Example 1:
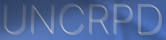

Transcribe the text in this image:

UNCRPD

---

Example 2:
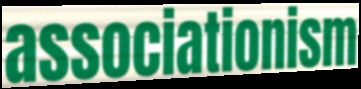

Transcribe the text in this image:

associationism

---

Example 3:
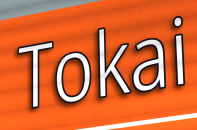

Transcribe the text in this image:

Tokai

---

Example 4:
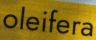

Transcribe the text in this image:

oleifera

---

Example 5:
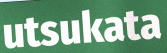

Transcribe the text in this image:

utsukata